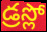
డ్రస్లో